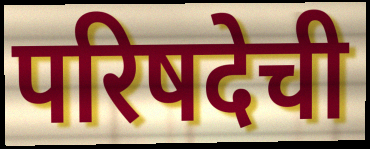
परिषदेची